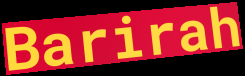
Barirah